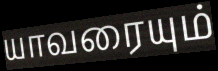
யாவரையும்